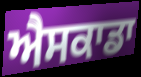
ਐਸਕਾਡਾ